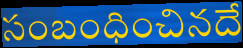
సంబంధించినదే